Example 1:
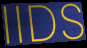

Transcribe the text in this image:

IIDS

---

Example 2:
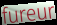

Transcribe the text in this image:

fureur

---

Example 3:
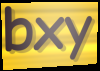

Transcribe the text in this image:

bxy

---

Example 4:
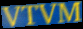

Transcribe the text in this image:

VTVM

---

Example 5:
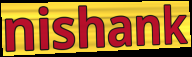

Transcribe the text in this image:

nishank